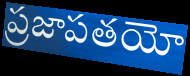
ప్రజాపతయో